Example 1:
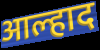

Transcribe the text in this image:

आल्हाद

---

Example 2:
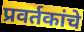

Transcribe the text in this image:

प्रवर्तकांचे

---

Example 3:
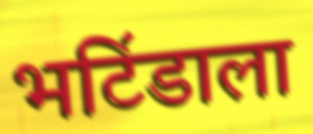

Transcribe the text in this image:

भटिंडाला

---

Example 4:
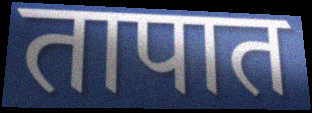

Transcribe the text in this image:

तापात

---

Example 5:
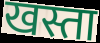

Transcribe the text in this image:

खस्ता